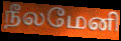
நீலமேனி